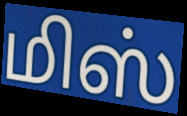
மிஸ்